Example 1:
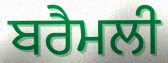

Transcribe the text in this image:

ਬਰੈਮਲੀ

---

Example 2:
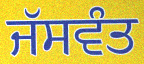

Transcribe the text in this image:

ਜੱਸਵੰਤ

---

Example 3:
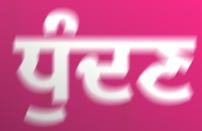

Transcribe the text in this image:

ਧੁੰਦਣ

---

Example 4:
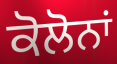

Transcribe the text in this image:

ਕੋਲੋਨਾਂ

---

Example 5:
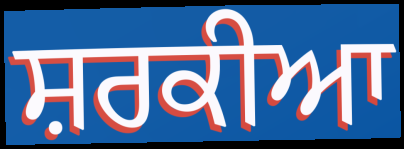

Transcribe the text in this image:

ਸ਼ਰਕੀਆ